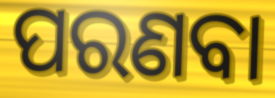
ପରଣବା